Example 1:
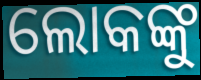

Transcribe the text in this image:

ଲୋକଙ୍କୁ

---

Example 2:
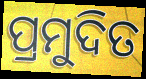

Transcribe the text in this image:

ପ୍ରମୁଦିତ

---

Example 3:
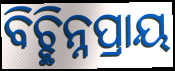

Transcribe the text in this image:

ବିଚ୍ଛିନ୍ନପ୍ରାୟ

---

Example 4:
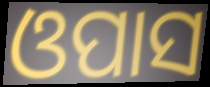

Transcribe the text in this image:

ଓପାସ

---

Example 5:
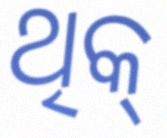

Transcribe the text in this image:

ଥିକ୍